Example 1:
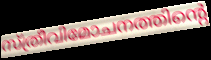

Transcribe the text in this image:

സ്ത്രീവിമോചനത്തിന്റെ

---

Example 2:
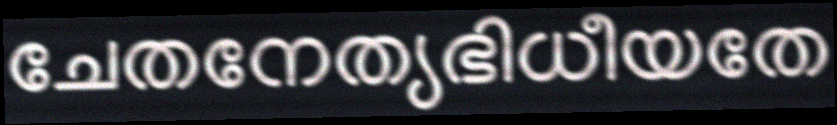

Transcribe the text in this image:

ചേതനേത്യഭിധീയതേ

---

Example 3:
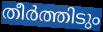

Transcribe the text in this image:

തീർത്തിടും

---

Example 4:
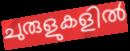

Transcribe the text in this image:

ചുരുളുകളിൽ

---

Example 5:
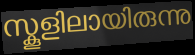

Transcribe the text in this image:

സ്കൂളിലായിരുന്നു